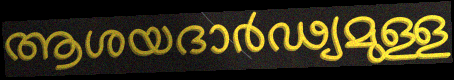
ആശയദാർഢ്യമുള്ള